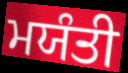
ਮਯੰਤੀ